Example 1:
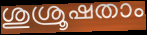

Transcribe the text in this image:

ശുശ്രൂഷതാം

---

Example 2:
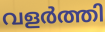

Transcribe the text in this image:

വളർത്തി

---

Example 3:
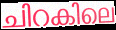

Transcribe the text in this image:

ചിറകിലെ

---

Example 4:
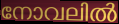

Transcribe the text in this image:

നോവലിൽ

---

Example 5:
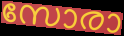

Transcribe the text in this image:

സോരാ